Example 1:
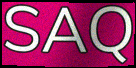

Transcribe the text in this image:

SAQ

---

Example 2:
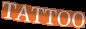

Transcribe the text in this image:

TATTOO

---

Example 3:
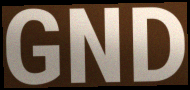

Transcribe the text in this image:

GND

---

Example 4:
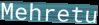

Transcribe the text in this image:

Mehretu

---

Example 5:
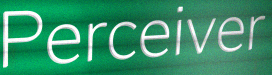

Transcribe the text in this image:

Perceiver